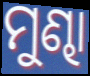
ମୁଣ୍ଢା